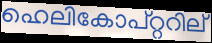
ഹെലികോപ്റ്ററില്